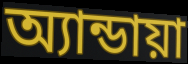
অ্যান্ডায়া